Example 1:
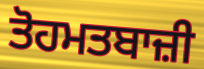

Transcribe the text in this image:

ਤੋਹਮਤਬਾਜ਼ੀ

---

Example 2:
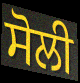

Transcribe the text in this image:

ਸੋਲੀ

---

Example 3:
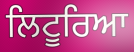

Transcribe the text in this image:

ਲਿਟੂਰਿਆ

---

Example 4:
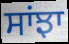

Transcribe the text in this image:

ਸਾਂਝਾ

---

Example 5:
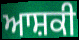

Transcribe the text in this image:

ਆਸ਼ਕੀ